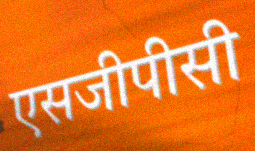
एसजीपीसी